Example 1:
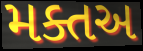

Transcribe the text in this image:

મક્તઅ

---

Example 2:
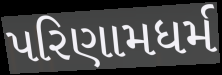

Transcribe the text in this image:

પરિણામધર્મ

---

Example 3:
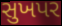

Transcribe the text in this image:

સુખપર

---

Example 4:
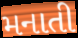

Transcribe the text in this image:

મનાતી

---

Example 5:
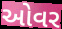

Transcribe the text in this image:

ઓવર